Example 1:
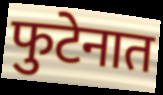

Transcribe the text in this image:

फुटेनात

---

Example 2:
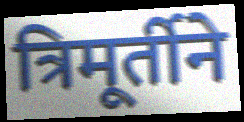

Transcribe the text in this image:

त्रिमूर्तीने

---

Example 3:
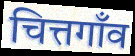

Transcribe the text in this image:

चित्तगाँव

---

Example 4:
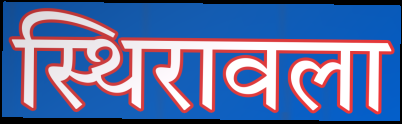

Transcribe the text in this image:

स्थिरावला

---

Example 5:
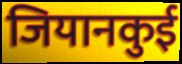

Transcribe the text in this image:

जियानकुई